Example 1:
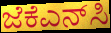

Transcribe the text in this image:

ಜೆಕೆಎನ್‌ಸಿ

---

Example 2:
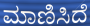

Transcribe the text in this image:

ಮಾಣಿಸಿದೆ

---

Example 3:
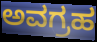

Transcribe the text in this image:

ಅವಗ್ರಹ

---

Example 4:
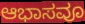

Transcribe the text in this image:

ಆಭಾಸವೂ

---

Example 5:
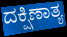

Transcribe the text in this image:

ದಕ್ಷಿಣಾತ್ಯ